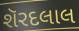
શૅરદલાલ